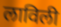
लाविली